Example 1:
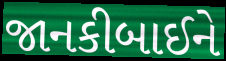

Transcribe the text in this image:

જાનકીબાઈને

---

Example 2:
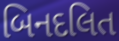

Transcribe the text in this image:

બિનદલિત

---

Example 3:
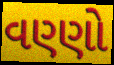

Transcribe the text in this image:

વણ્ણો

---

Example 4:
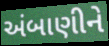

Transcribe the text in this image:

અંબાણીને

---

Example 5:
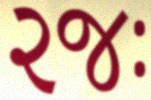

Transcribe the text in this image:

રજઃ